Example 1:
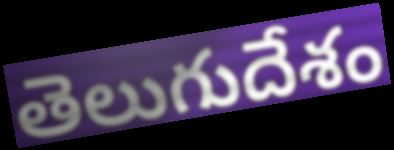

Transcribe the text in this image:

తెలుగుదేశం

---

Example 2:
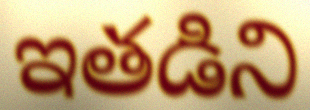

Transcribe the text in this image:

ఇతడిని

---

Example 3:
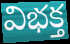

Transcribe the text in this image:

విభక్త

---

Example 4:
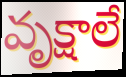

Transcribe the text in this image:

వృక్షాలే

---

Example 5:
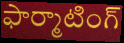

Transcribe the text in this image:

ఫార్మాటింగ్